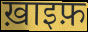
ख़ाइफ़